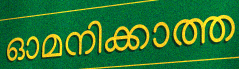
ഓമനിക്കാത്ത